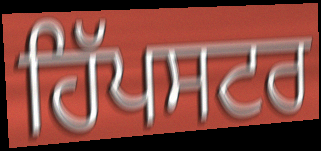
ਹਿੱਪਸਟਰ